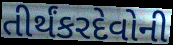
તીર્થંકરદેવોની